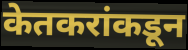
केतकरांकडून